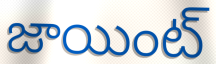
జాయింట్